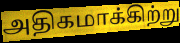
அதிகமாக்கிற்று